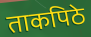
ताकपिठे